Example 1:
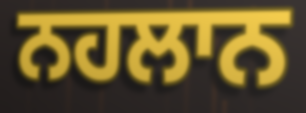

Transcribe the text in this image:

ਨਹਲਾਨ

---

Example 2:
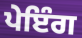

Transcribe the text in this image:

ਪੇਇੰਗ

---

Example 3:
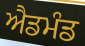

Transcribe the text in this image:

ਐਡਮੰਡ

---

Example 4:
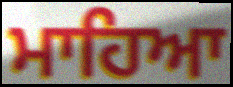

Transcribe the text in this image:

ਮਾਹਿਆ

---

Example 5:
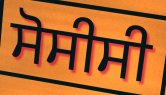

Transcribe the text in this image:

ਸੋਸੀਸੀ